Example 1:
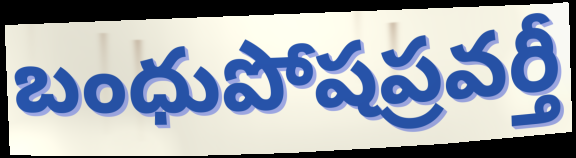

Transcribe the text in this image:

బంధుపోషప్రవర్తీ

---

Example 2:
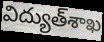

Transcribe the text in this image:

విద్యుత్‌శాఖ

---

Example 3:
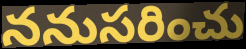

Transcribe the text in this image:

ననుసరించు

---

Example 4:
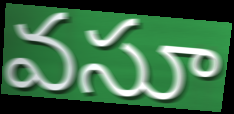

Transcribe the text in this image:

వసూ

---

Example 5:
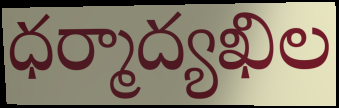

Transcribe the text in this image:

ధర్మాద్యఖిల